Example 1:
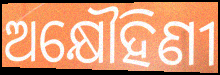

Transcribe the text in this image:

ଅକ୍ଷୌହିଣୀ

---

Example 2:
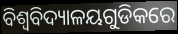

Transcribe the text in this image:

ବିଶ୍ଵବିଦ୍ୟାଳୟଗୁଡିକରେ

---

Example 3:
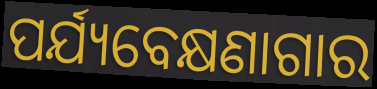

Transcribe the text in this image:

ପର୍ଯ୍ୟବେକ୍ଷଣାଗାର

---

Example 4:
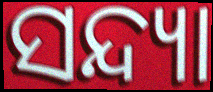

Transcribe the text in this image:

ସନ୍ଦ୍ୟା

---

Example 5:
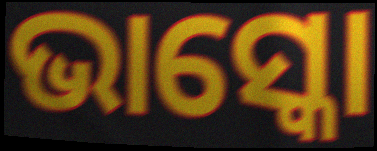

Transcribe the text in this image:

ଭାସ୍କୋ